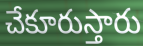
చేకూరుస్తారు